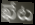
ఖేట